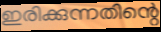
ഇരിക്കുന്നതിന്റെ